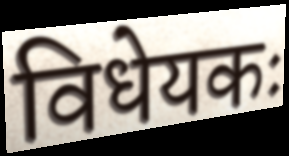
विधेयकः